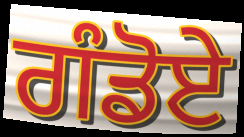
ਗੰਡੋਏ